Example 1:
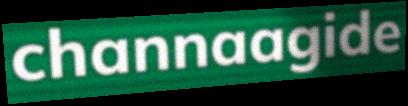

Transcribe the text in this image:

channaagide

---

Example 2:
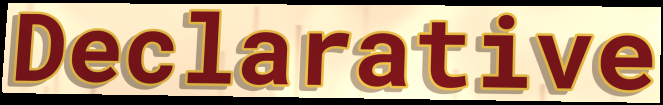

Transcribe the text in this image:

Declarative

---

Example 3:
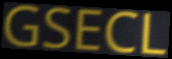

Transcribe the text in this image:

GSECL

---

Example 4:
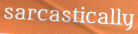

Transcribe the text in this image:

sarcastically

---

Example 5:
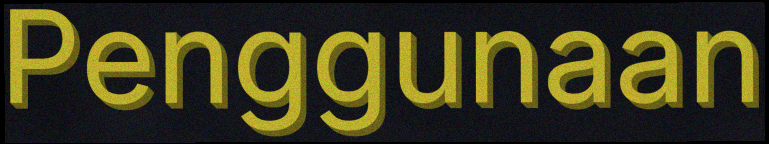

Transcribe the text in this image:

Penggunaan